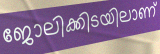
ജോലിക്കിടയിലാണ്